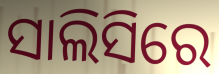
ସାଲିସିରେ